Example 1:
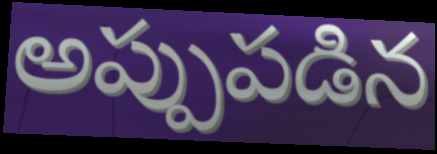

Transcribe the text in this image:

అప్పుపడిన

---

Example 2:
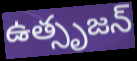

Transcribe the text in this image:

ఉత్సృజన్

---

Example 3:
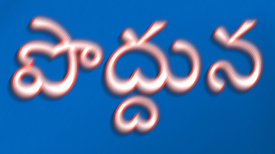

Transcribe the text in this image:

పొద్దున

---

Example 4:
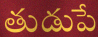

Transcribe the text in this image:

తుడుపే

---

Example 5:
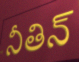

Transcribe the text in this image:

నీతిన్